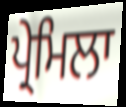
ਪ੍ਰੇਮਿਲਾ